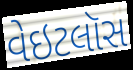
વેઇટલૉસ